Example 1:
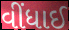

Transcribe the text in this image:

વીંધાઈ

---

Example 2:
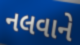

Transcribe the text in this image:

નલવાને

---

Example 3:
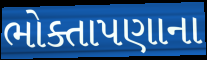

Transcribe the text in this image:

ભોક્તાપણાના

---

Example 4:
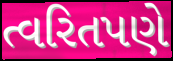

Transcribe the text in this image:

ત્વરિતપણે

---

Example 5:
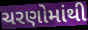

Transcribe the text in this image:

ચરણોમાંથી